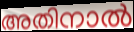
അതിനാൽ